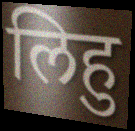
लिहु